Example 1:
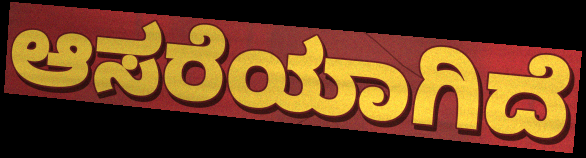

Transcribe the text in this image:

ಆಸರೆಯಾಗಿದೆ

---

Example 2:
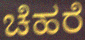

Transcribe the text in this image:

ಚೆಹರೆ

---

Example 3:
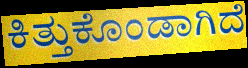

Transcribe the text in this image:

ಕಿತ್ತುಕೊಂಡಾಗಿದೆ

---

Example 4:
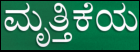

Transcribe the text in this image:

ಮೃತ್ತಿಕೆಯ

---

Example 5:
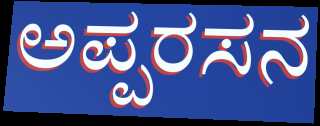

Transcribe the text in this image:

ಅಪ್ಪರಸನ